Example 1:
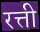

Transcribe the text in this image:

रत्ती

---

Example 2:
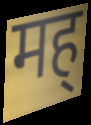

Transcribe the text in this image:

मह्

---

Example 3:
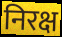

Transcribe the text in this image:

निरक्ष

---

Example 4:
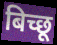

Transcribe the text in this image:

बिच्छू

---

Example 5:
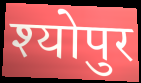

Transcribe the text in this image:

श्योपुर